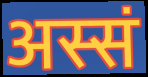
अस्सं